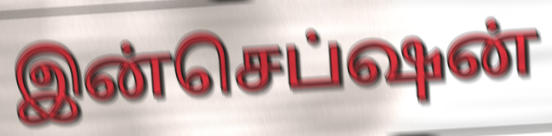
இன்செப்ஷன்